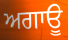
ਅਗਾਊ